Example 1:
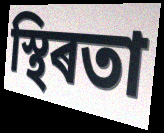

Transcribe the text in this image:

স্থিৰতা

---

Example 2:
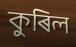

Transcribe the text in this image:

কুৰিল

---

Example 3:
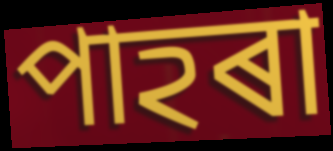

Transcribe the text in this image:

পাহৰা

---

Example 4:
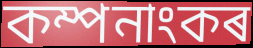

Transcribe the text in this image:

কম্পনাংকৰ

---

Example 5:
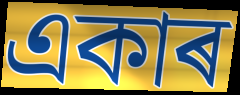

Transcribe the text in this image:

একাৰ